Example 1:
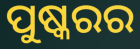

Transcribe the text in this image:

ପୁଷ୍କରର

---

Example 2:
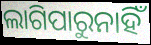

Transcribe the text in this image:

ଲାଗିପାରୁନାହିଁ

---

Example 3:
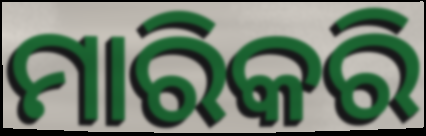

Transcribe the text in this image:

ମାରିକରି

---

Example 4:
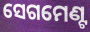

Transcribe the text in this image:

ସେଗମେଣ୍ଟ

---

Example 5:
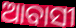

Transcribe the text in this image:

ଆବାସୀ